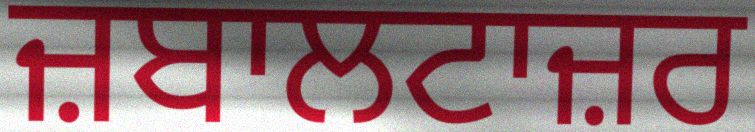
ਜ਼ਬਾਲਟਾਜ਼ਰ